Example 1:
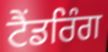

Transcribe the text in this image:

ਟੈਂਡਰਿੰਗ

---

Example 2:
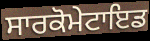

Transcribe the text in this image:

ਸਾਰਕੋਮੇਟਾਇਡ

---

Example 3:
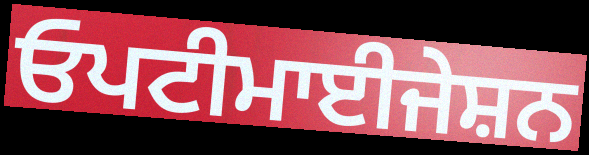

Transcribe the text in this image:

ਓਪਟੀਮਾਈਜੇਸ਼ਨ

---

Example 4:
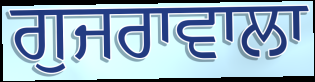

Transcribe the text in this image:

ਗੁਜਰਾਵਾਲਾ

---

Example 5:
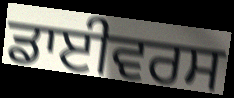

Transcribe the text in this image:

ਡਾਈਵਰਸ